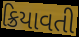
ક્રિયાવતી